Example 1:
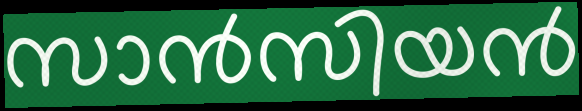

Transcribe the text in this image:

സാൻസിയൻ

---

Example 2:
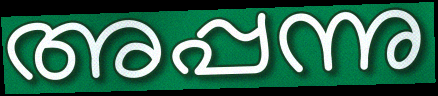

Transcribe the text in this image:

അപ്പന്നു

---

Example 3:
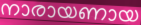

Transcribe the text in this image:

നാരായണായ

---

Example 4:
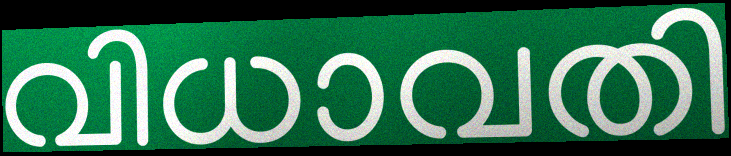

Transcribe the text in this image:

വിധാവതി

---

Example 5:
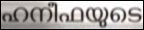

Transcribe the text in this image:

ഹനീഫയുടെ